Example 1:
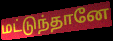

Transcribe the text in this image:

மட்டுந்தானே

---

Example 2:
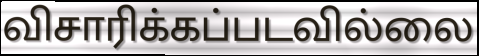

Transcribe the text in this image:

விசாரிக்கப்படவில்லை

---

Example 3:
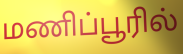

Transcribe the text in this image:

மணிப்பூரில்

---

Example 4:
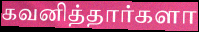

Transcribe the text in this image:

கவனித்தார்களா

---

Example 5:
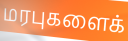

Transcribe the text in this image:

மரபுகளைக்